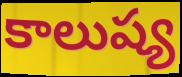
కాలుష్య